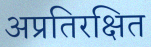
अप्रतिरक्षित